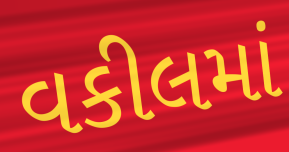
વકીલમાં